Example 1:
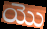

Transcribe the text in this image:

యొ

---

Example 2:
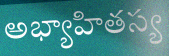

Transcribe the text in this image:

అభ్యాహితస్య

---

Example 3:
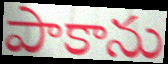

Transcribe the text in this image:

పాకాను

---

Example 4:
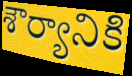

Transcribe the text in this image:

శౌర్యానికి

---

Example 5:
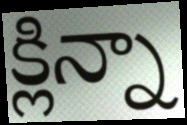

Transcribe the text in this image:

క్లిన్నా